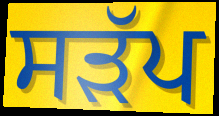
ਸੜੱਪ